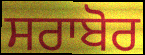
ਸਰਾਬੋਰ